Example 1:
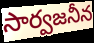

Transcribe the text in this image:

సార్వజనీన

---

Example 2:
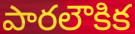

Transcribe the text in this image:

పారలౌకిక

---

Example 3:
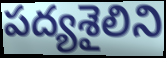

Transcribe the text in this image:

పద్యశైలిని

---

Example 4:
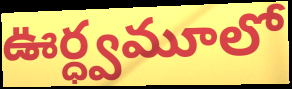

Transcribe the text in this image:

ఊర్ధ్వమూలో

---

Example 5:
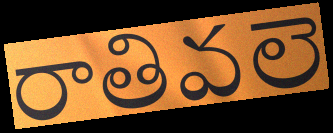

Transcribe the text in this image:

రాతివలె